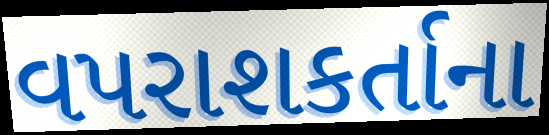
વપરાશકર્તાના